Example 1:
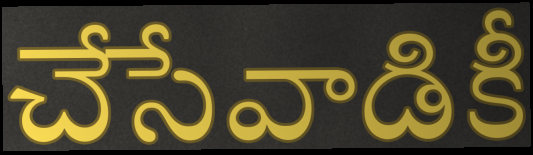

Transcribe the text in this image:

చేసేవాడికీ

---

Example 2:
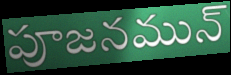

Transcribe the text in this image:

పూజనమున్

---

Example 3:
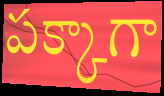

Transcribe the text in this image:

పక్కాగా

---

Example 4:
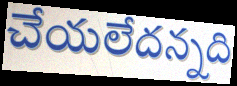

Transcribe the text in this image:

చేయలేదన్నది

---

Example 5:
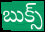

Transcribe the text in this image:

బుక్స్